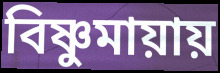
বিষ্ণুমায়ায়